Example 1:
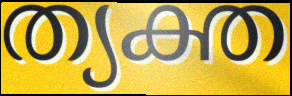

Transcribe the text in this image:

ത്യക്ത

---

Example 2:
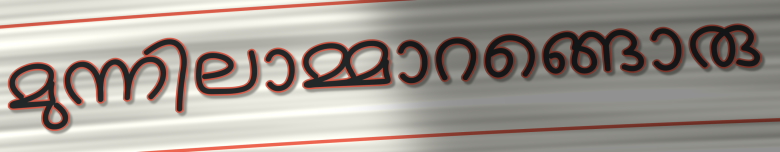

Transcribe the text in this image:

മുന്നിലാമ്മാറങ്ങൊരു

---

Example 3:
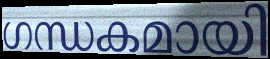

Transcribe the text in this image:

ഗന്ധകമായി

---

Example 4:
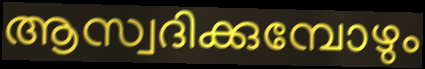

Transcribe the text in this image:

ആസ്വദിക്കുമ്പോഴും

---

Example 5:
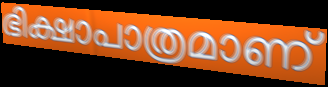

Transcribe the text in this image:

ഭിക്ഷാപാത്രമാണ്